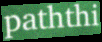
paththi